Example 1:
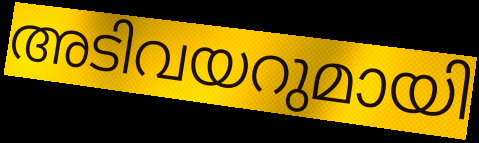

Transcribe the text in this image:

അടിവയറുമായി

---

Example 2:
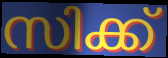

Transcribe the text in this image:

സിക്ക്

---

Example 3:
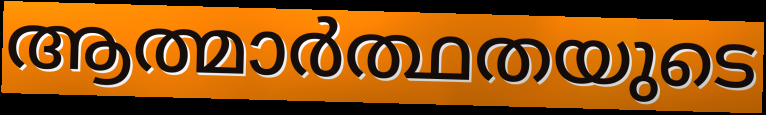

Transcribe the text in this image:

ആത്മാർത്ഥതയുടെ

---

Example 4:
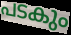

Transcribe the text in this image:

പടകും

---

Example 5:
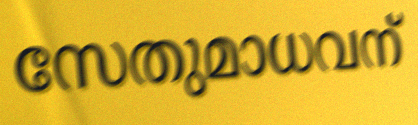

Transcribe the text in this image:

സേതുമാധവന്